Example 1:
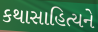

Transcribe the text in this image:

કથાસાહિત્યને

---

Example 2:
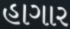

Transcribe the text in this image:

હાગાર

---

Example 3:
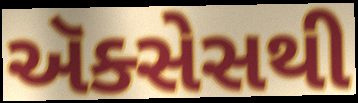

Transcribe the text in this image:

ઍક્સેસથી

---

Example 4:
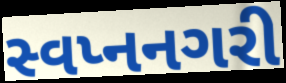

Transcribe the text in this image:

સ્વપ્નનગરી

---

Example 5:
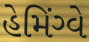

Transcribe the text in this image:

હેમિંગ્વે